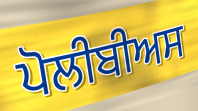
ਪੋਲੀਬੀਅਸ